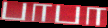
பாபா